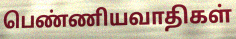
பெண்ணியவாதிகள்